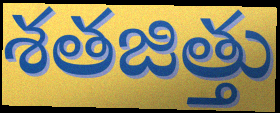
శతజిత్తు